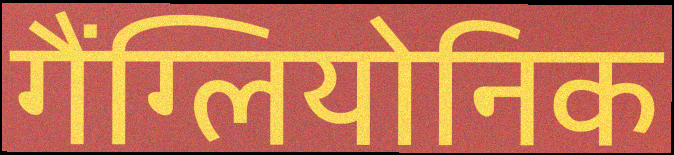
गैंग्लियोनिक